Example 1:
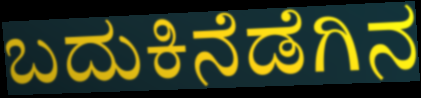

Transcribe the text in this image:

ಬದುಕಿನೆಡೆಗಿನ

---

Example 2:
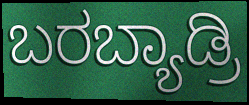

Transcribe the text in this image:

ಬರಬ್ಯಾಡ್ರಿ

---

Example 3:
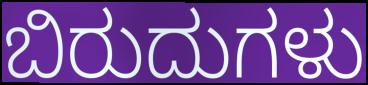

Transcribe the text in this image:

ಬಿರುದುಗಳು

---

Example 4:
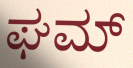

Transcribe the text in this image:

ಘಮ್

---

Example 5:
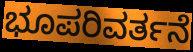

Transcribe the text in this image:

ಭೂಪರಿವರ್ತನೆ